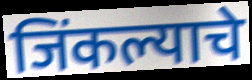
जिंकल्याचे